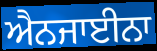
ਐਨਜਾਈਨਾ